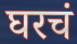
घरचं